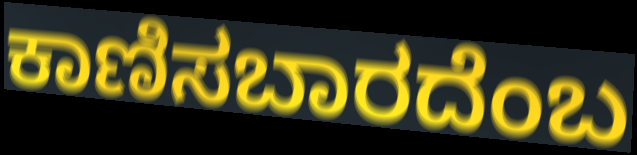
ಕಾಣಿಸಬಾರದೆಂಬ